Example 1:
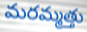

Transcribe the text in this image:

మరమ్మత్తు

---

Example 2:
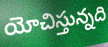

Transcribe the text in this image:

యోచిస్తున్నది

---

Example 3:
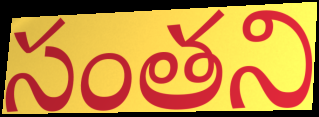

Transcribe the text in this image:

సంతని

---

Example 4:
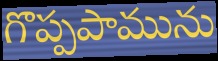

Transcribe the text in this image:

గొప్పపామును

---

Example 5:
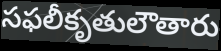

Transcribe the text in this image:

సఫలీకృతులౌతారు